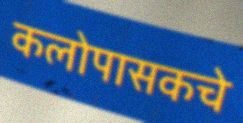
कलोपासकचे